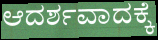
ಆದರ್ಶವಾದಕ್ಕೆ